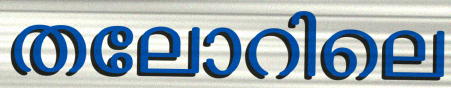
തലോറിലെ